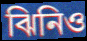
ঝিনিও